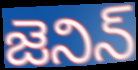
జెనిన్